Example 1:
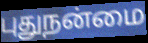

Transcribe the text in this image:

புதுநன்மை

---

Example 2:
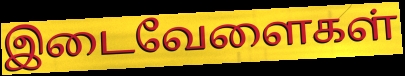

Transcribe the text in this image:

இடைவேளைகள்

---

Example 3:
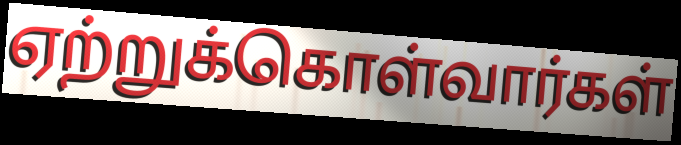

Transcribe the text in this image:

ஏற்றுக்கொள்வார்கள்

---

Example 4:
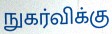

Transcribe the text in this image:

நுகர்விக்கு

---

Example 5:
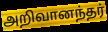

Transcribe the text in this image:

அறிவானந்தர்